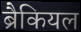
ब्रैकियल